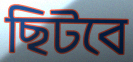
ছিটবে